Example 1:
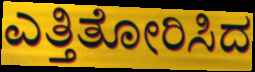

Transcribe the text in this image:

ಎತ್ತಿತೋರಿಸಿದ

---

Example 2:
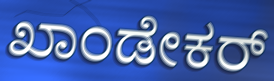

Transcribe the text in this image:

ಖಾಂಡೇಕರ್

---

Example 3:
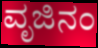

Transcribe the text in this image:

ವೃಜಿನಂ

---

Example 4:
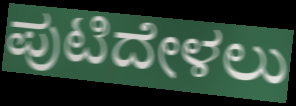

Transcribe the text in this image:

ಪುಟಿದೇಳಲು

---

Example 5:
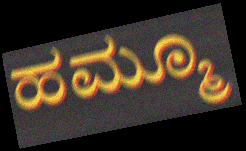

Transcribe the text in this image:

ಹಮ್ಮೂ